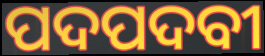
ପଦପଦବୀ